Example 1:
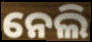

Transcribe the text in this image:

ନେଲି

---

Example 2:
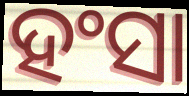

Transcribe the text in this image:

ହଂସା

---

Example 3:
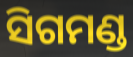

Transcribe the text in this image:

ସିଗମଣ୍ଡ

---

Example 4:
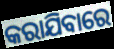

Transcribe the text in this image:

କରାଯିବାରେ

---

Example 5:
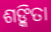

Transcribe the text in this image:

ଶଙ୍କିତା